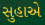
સુહાએ